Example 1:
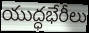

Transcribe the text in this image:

యుద్ధభేరీలు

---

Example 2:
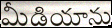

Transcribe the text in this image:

మీడియాను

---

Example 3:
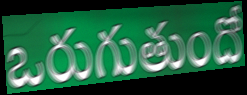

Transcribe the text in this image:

ఒరుగుతుందో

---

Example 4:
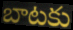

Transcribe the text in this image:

బాటకు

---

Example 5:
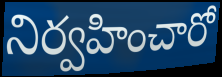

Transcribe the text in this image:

నిర్వహించారో